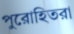
পুরোহিতরা